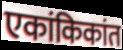
एकांकिकांत